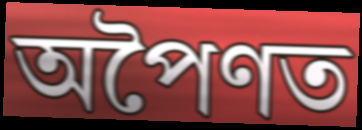
অপৈণত